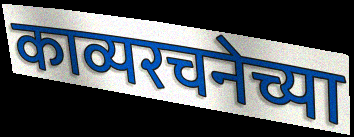
काव्यरचनेच्या